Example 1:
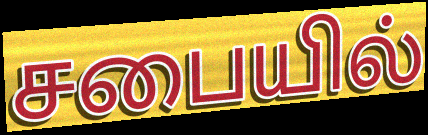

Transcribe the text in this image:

சபையில்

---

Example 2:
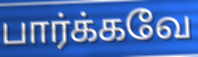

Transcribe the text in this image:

பார்க்கவே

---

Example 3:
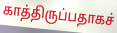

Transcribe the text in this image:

காத்திருப்பதாகச்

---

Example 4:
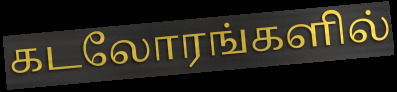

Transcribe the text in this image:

கடலோரங்களில்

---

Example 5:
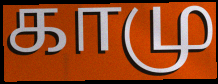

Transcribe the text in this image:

காமு